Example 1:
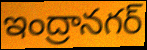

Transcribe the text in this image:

ఇంద్రానగర్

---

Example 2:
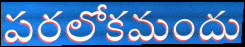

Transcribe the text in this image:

పరలోకమందు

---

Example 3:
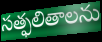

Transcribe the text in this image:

సత్ఫలితాలను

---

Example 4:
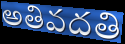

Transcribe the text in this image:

అతివదతి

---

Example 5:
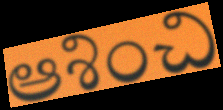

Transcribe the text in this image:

ఆశించి